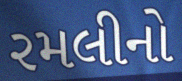
રમલીનો